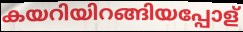
കയറിയിറങ്ങിയപ്പോള്